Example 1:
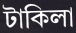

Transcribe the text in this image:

টাকিলা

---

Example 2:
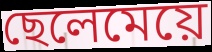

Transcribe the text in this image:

ছেলেমেয়ে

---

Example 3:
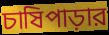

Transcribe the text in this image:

চাষিপাড়ার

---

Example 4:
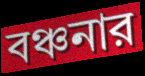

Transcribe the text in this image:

বঞ্চনার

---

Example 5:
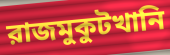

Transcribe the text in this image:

রাজমুকুটখানি